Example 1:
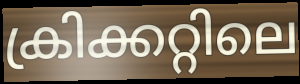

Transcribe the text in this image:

ക്രിക്കറ്റിലെ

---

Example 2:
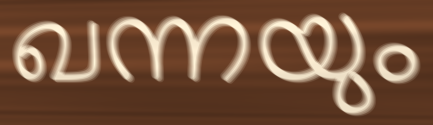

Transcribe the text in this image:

ഖന്നയും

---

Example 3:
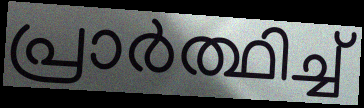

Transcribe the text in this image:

പ്രാർത്ഥിച്ച്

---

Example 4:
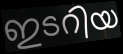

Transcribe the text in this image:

ഇടറിയ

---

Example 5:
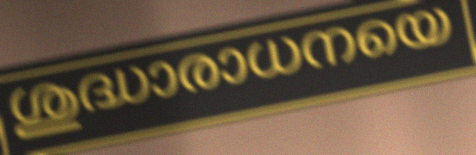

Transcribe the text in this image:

ശുദ്ധാരാധനയെ